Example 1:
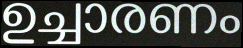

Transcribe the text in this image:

ഉച്ചാരണം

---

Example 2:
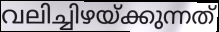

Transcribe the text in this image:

വലിച്ചിഴയ്ക്കുന്നത്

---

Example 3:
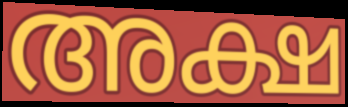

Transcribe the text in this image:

അക്ഷ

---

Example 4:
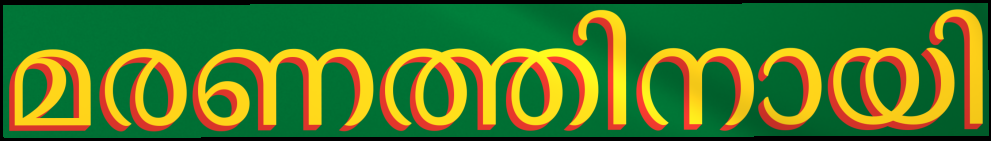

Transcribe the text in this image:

മരണത്തിനായി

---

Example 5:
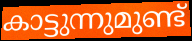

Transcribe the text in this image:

കാട്ടുന്നുമുണ്ട്